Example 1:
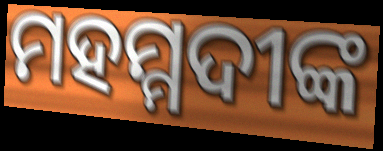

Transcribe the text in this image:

ମହମ୍ମଦୀଙ୍କ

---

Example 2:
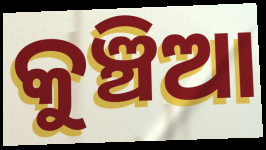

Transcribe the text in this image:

କୁଞ୍ଚିଆ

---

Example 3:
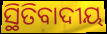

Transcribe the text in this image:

ସ୍ଥିତିବାଦୀୟ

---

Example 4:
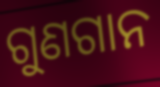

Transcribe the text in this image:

ଗୁଣଗାନ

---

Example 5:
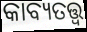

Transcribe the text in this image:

କାବ୍ୟତତ୍ତ୍ୱ